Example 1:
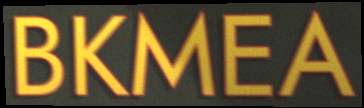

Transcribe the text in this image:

BKMEA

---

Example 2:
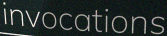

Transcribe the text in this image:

invocations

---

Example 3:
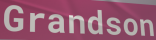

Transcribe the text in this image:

Grandson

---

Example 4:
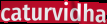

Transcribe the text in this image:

caturvidha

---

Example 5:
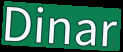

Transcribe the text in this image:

Dinar